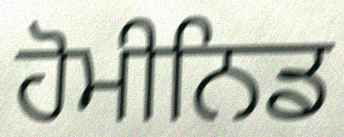
ਹੋਮੀਨਿਡ